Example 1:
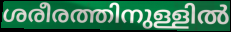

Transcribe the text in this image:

ശരീരത്തിനുള്ളിൽ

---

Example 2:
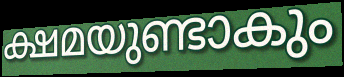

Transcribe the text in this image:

ക്ഷമയുണ്ടാകും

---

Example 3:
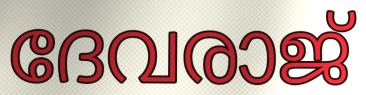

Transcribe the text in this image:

ദേവരാജ്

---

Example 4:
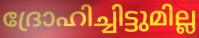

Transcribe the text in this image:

ദ്രോഹിച്ചിട്ടുമില്ല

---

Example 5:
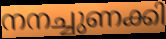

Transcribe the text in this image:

നനച്ചുണക്കി